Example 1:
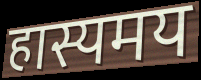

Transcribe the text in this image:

हास्यमय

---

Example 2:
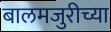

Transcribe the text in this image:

बालमजुरीच्या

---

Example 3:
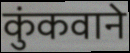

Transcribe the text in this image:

कुंकवाने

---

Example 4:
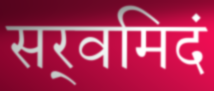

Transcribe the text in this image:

सर्वमिदं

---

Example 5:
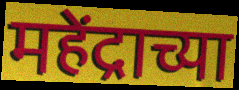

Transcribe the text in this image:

महेंद्राच्या